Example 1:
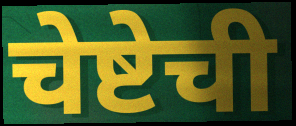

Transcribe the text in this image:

चेष्टेची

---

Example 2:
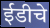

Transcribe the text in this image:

ईडीचे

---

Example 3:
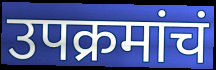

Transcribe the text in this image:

उपक्रमांचं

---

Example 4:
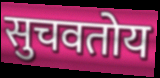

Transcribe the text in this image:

सुचवतोय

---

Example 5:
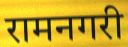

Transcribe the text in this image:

रामनगरी